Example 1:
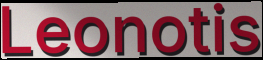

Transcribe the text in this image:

Leonotis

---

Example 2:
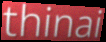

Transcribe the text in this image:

thinai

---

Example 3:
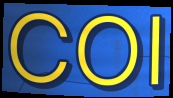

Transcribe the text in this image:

COI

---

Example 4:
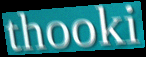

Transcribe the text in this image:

thooki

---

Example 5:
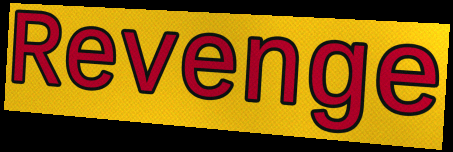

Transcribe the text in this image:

Revenge